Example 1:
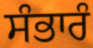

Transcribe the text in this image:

ਸੰਭਾਰੰ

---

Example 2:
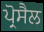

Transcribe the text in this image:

ਪ੍ਰੋਸੈਲ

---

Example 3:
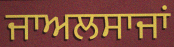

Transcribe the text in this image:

ਜਾਅਲਸਾਜਾਂ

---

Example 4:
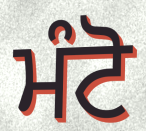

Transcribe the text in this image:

ਮੰਟੋ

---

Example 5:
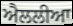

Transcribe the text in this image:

ਐਲਲੀਆ